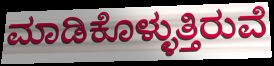
ಮಾಡಿಕೊಳ್ಳುತ್ತಿರುವೆ